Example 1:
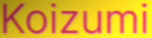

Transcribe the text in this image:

Koizumi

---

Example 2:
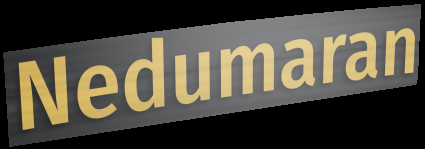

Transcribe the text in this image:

Nedumaran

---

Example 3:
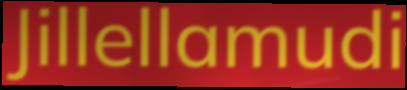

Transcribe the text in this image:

Jillellamudi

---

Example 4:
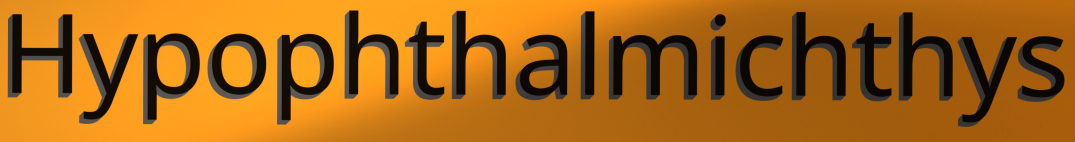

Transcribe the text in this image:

Hypophthalmichthys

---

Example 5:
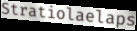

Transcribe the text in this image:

Stratiolaelaps